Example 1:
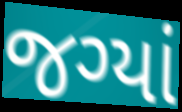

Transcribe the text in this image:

જગ્યાં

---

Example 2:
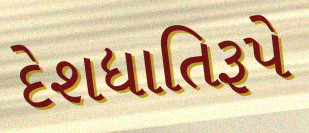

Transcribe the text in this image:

દેશદ્યાતિરૂપે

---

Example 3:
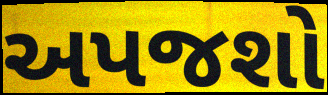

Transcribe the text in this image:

અપજશો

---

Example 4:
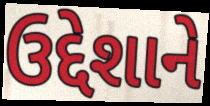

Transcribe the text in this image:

ઉદ્દેશાને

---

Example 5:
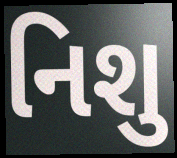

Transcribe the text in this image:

નિશુ